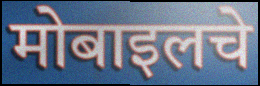
मोबाइलचे